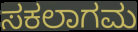
ಸಕಲಾಗಮ